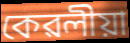
কেৱলীয়া